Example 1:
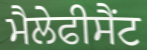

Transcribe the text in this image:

ਮੈਲੇਫੀਸੈਂਟ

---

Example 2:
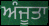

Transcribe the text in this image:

ਅੰਜੂਤਾ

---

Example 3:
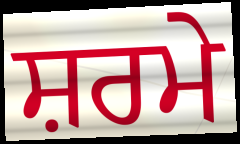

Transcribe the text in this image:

ਸ਼ਰਮੇ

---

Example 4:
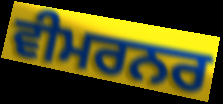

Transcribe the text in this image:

ਵੀਮਰਨਰ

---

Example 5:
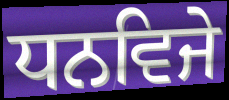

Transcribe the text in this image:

ਧਨਵਿਜੇ